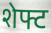
शेफ्ट